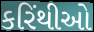
કરિંથીઓ